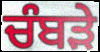
ਚੰਬੜੇ